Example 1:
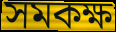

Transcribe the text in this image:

সমকক্ষ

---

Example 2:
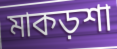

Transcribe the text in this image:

মাকড়শা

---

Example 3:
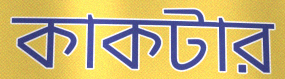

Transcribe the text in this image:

কাকটার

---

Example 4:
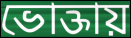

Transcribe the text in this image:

ভোক্তায়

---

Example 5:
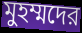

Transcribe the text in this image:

মুহম্মদের